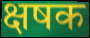
क्षषक